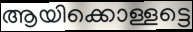
ആയിക്കൊള്ളട്ടെ